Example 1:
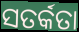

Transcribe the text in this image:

ସତର୍କତା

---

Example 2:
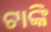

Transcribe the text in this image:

ଟାଙ୍କି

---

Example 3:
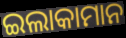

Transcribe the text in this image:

ଇଲାକାମାନ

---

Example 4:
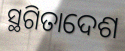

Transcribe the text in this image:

ସ୍ଥଗିତାଦେଶ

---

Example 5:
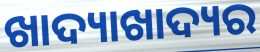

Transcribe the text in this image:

ଖାଦ୍ୟାଖାଦ୍ୟର